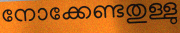
നോക്കേണ്ടതുള്ളു